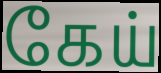
கேய்